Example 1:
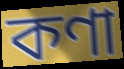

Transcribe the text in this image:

কণা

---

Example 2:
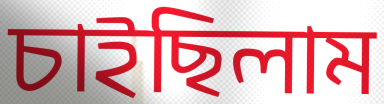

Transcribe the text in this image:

চাইছিলাম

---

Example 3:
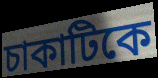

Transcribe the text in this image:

চাকাটিকে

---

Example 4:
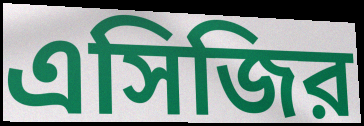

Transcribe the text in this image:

এসিজির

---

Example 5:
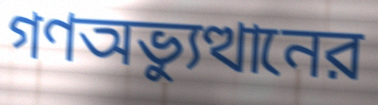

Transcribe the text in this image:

গণঅভ্যুত্থানের